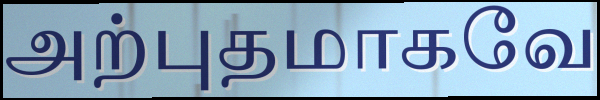
அற்புதமாகவே